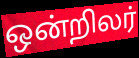
ஒன்றிலர்